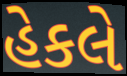
હેકલે